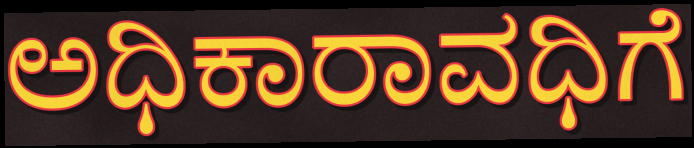
ಅಧಿಕಾರಾವಧಿಗೆ